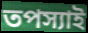
তপস্যাই